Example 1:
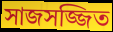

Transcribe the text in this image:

সাজসজ্জিত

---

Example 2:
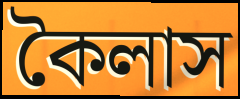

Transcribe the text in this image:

কৈলাস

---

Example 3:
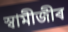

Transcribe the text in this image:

স্বামীজীৰ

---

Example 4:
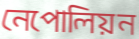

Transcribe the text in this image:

নেপোলিয়ন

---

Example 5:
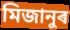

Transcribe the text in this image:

মিজানুৰ